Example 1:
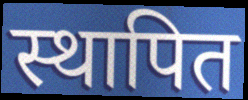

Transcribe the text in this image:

स्थापित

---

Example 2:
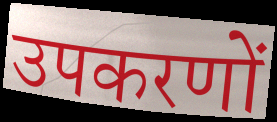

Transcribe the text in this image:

उपकरणों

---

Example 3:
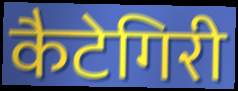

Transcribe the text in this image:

कैटेगिरी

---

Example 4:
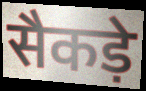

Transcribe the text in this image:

सैकड़े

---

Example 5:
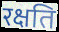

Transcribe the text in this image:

रक्षति